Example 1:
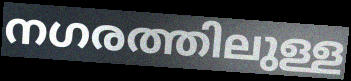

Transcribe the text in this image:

നഗരത്തിലുള്ള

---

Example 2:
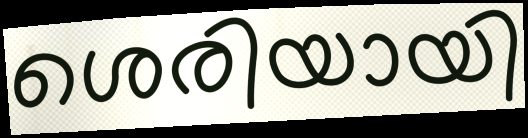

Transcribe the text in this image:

ശെരിയായി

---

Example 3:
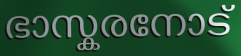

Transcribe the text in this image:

ഭാസ്കരനോട്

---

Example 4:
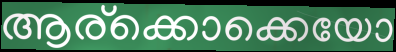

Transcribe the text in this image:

ആര്ക്കൊക്കെയോ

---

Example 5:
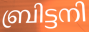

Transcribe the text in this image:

ബ്രിട്ടനി